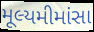
મૂલ્યમીમાંસા